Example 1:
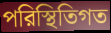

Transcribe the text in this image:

পরিস্থিতিগত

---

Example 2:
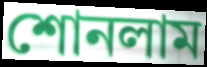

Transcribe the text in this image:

শোনলাম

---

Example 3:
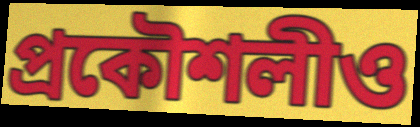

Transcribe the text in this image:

প্রকৌশলীও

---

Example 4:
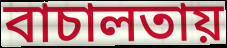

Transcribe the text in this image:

বাচালতায়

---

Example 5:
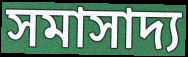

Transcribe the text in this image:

সমাসাদ্য